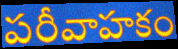
పరీవాహకం